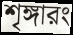
শৃঙ্গারং